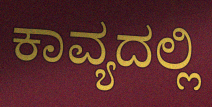
ಕಾವ್ಯದಲ್ಲಿ